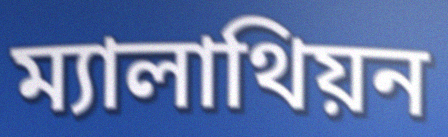
ম্যালাথিয়ন